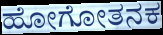
ಹೋಗೋತನಕ